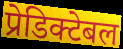
प्रेडिक्टेबल